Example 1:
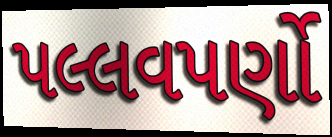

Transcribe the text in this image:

પલ્લવપર્ણો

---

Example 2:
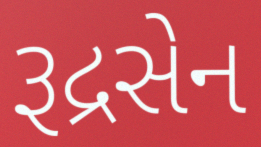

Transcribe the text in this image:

રૂદ્રસેન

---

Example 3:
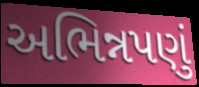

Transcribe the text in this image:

અભિન્નપણું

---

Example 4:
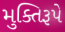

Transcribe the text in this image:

મુક્તિરૂપે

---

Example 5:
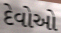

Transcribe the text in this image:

દેવોઓ